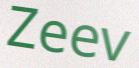
Zeev